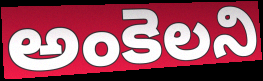
అంకెలని